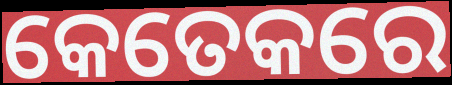
କେତେକରେ